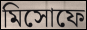
মিসোফে